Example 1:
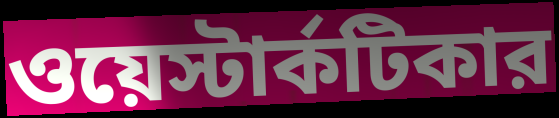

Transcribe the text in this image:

ওয়েস্টার্কটিকার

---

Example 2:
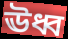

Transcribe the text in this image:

ঊধ্ব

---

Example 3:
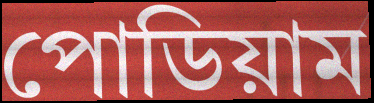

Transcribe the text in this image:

পোডিয়াম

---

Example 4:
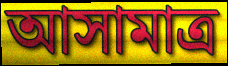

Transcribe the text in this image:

আসামাত্র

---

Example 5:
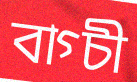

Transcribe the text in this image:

বাগ্চী